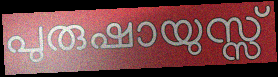
പുരുഷായുസ്സ്